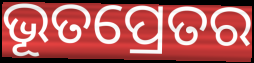
ଭୂତପ୍ରେତର